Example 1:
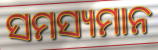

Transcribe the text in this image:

ସମସ୍ୟମାନ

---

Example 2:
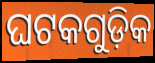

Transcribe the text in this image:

ଘଟକଗୁଡ଼ିକ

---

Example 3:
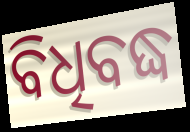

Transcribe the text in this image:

ବିଧିବଦ୍ଧ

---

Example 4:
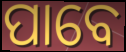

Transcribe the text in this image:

ପାବେ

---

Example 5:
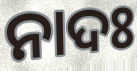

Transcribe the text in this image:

ନାଦଃ